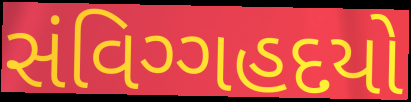
સંવિગ્ગહદયો